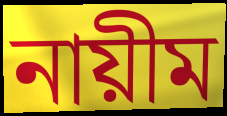
নায়ীম